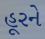
હૂરને